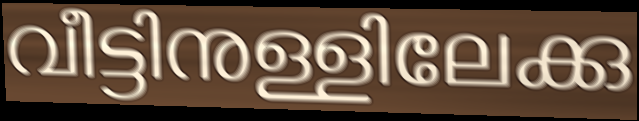
വീട്ടിനുള്ളിലേക്കു